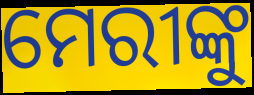
ମେରୀଙ୍କୁ